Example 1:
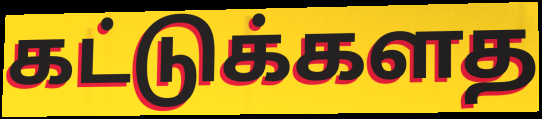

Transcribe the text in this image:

கட்டுக்களத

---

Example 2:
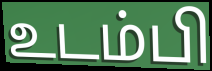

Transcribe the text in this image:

உடம்பி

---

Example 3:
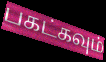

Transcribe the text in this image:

பகட்கவும்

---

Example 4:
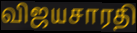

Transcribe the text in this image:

விஜயசாரதி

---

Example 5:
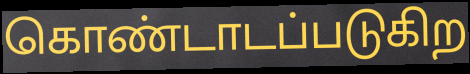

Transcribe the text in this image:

கொண்டாடப்படுகிற